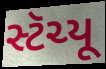
સ્ટૅચ્યૂ